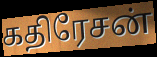
கதிரேசன்